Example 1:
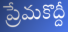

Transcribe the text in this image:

ప్రేమకొద్దీ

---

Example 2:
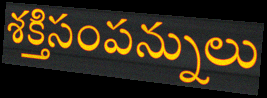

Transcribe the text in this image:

శక్తిసంపన్నులు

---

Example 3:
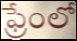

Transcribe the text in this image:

ఫ్రేంలో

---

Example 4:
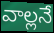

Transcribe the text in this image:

వాల్లనే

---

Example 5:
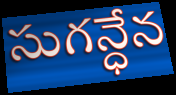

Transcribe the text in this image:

సుగన్ధేన